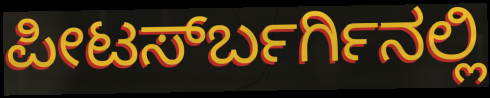
ಪೀಟರ್ಸ್‍ಬರ್ಗಿನಲ್ಲಿ